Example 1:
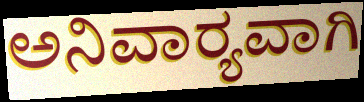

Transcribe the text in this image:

ಅನಿವಾರ‍್ಯವಾಗಿ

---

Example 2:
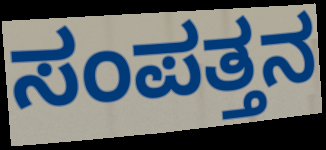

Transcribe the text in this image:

ಸಂಪತ್ತನ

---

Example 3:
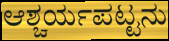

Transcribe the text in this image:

ಆಶ್ಚರ್ಯಪಟ್ಟನು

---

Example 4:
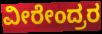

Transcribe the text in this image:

ವೀರೇಂದ್ರರ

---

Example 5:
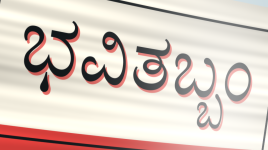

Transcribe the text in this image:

ಭವಿತಬ್ಬಂ